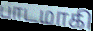
பாடமாகி